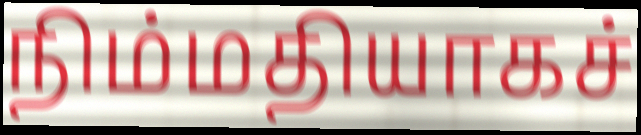
நிம்மதியாகச்